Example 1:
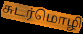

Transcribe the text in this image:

சுடர்மொழி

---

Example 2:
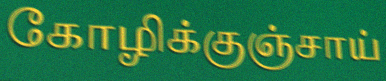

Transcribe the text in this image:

கோழிக்குஞ்சாய்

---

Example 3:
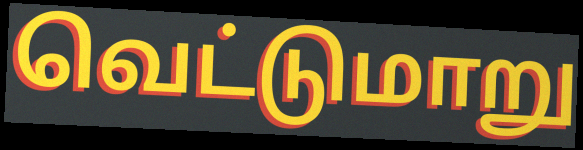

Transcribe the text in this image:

வெட்டுமாறு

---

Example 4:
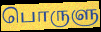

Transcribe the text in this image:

பொருளு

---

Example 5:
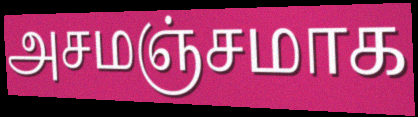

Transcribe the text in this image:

அசமஞ்சமாக